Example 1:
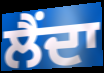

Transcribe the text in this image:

ਲੈਂਦਾ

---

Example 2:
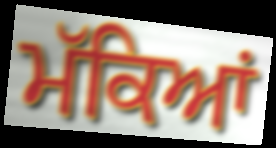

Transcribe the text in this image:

ਮੱਕਿਆਂ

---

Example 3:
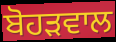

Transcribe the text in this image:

ਬੋਹੜਵਾਲ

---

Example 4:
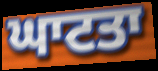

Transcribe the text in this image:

ਘਾਟਤਾ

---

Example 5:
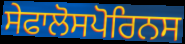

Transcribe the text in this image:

ਸੇਫਾਲੋਸਪੋਰਿਨਸ